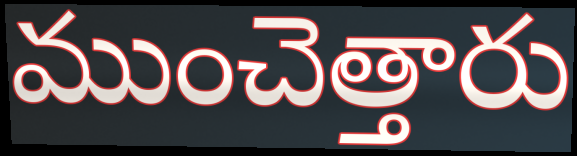
ముంచెత్తారు